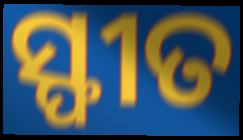
ସ୍ଫୀତ